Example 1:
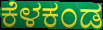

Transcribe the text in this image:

ಕೆಳಕಂಡ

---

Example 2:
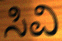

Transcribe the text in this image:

ಸಿವಿ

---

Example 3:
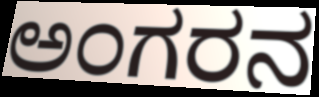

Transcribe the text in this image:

ಅಂಗರನ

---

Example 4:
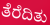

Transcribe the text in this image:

ತೆರೆದಿತು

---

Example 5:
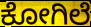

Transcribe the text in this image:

ಕೋಗಿಲೆ